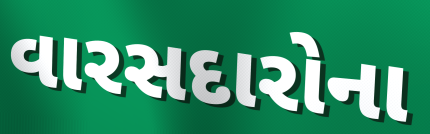
વારસદારોના